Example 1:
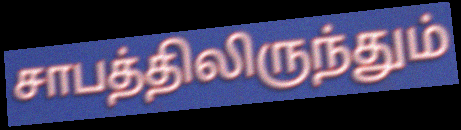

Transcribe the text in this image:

சாபத்திலிருந்தும்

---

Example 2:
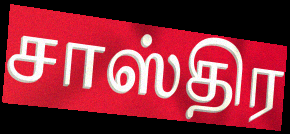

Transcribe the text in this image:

சாஸ்திர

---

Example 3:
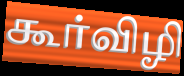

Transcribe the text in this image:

கூர்விழி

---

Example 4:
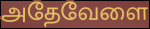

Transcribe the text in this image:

அதேவேளை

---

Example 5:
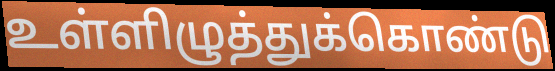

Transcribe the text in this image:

உள்ளிழுத்துக்கொண்டு